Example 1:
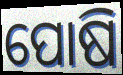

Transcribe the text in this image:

ପୋଷି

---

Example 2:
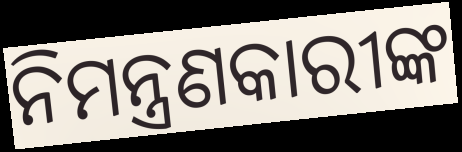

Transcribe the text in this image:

ନିମନ୍ତ୍ରଣକାରୀଙ୍କ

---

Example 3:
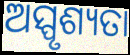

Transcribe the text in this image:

ଅସ୍ପୃଶ୍ୟତା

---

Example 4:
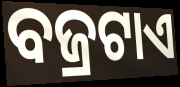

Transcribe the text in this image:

ବଜ୍ରଟାଏ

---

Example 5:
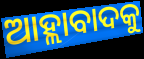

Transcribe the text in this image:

ଆହ୍ଲାବାଦକୁ